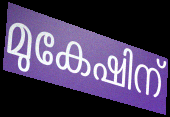
മുകേഷിന്